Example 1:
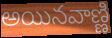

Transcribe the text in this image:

అయినవాణ్ణి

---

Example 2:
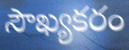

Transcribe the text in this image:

సౌఖ్యకరం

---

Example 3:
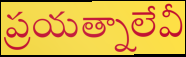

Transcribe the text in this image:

ప్రయత్నాలేవీ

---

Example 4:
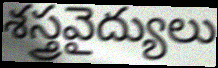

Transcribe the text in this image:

శస్త్రవైద్యులు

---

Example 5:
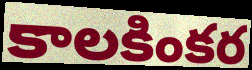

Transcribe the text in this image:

కాలకింకర